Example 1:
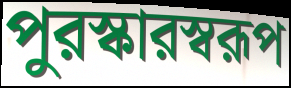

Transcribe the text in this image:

পুরস্কারস্বরূপ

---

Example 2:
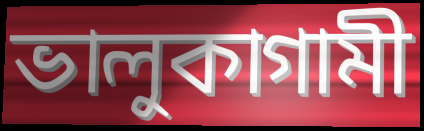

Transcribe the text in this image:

ভালুকাগামী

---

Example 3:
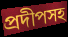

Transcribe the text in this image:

প্রদীপসহ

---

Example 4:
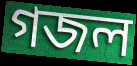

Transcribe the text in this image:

গজল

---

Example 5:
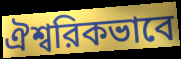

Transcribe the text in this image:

ঐশ্বরিকভাবে